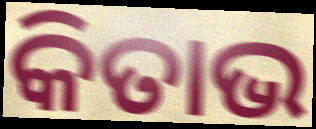
କିତାଭ